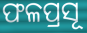
ଫଳପ୍ରସୂ